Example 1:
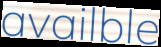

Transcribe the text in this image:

availble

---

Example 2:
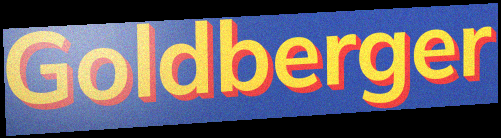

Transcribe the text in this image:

Goldberger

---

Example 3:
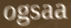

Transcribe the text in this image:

ogsaa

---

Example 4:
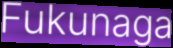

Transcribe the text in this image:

Fukunaga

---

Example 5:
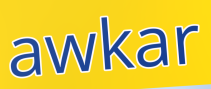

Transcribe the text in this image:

awkar